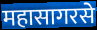
महासागरसे